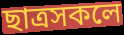
ছাত্ৰসকলে